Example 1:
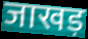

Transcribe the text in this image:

जाखड़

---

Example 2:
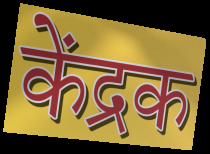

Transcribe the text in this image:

केंद्रक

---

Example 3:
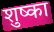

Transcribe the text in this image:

शुष्का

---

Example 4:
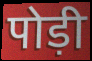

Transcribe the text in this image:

पोड़ी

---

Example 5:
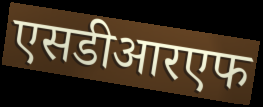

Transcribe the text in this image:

एसडीआरएफ